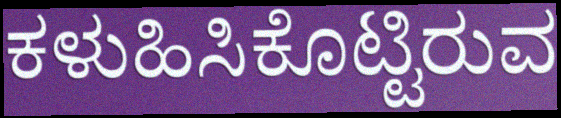
ಕಳುಹಿಸಿಕೊಟ್ಟಿರುವ